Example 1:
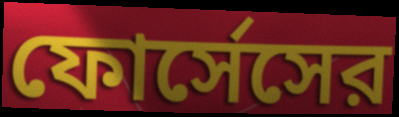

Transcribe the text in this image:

ফোর্সেসের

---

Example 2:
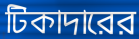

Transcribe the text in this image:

টিকাদারের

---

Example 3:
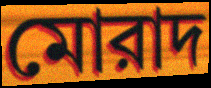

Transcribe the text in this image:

মোরাদ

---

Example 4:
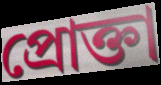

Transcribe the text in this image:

প্রোক্তা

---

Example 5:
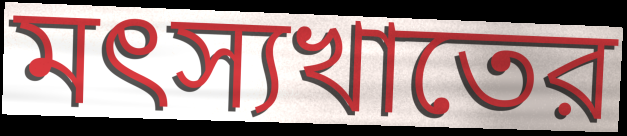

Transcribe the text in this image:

মৎস্যখাতের